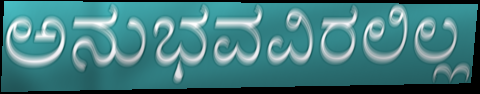
ಅನುಭವವಿರಲಿಲ್ಲ